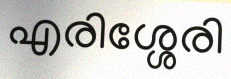
എരിശ്ശേരി